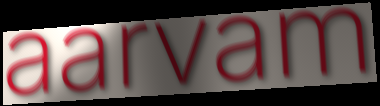
aarvam